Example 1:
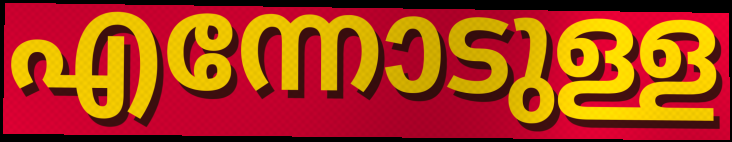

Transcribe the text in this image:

എന്നോടുള്ള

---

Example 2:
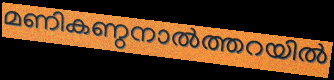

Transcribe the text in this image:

മണികണ്ഠനാൽത്തറയിൽ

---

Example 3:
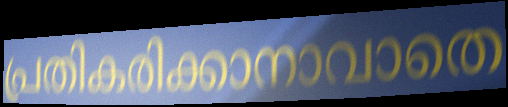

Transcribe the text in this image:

പ്രതികരിക്കാനാവാതെ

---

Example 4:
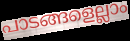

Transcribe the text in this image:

പാടങ്ങളെല്ലാം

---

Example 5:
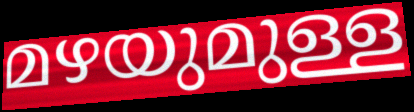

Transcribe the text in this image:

മഴയുമുള്ള